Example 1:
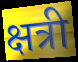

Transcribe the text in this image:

क्षत्री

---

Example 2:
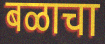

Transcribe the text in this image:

बळाचा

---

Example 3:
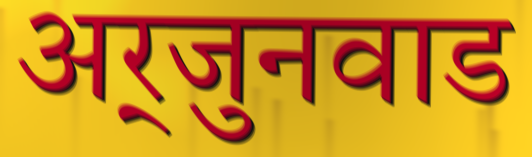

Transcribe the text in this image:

अर्जुनवाड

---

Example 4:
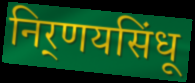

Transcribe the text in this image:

निर्णयसिंधू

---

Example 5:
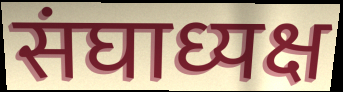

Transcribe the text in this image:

संघाध्यक्ष